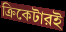
ক্রিকেটারই